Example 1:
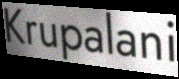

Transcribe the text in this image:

Krupalani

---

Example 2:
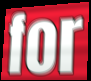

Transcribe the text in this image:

for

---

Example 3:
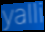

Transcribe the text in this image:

yalli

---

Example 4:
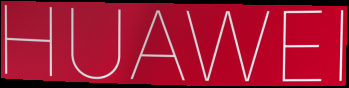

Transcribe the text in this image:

HUAWEI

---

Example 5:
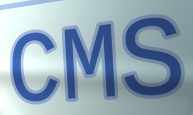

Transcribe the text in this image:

CMS